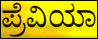
ಪ್ರೆವಿಯಾ